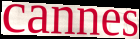
cannes